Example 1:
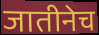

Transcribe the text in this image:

जातीनेच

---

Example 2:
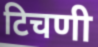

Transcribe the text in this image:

टिचणी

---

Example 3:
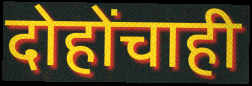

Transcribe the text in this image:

दोहोंचाही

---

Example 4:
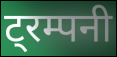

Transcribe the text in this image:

ट्रम्पनी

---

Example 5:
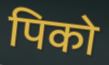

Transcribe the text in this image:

पिको